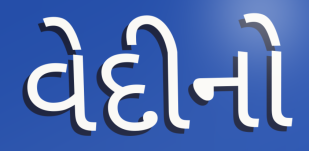
વેદીનો